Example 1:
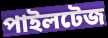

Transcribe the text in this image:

পাইলটেজ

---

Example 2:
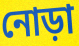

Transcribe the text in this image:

নোড়া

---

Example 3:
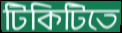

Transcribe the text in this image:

টিকিটিতে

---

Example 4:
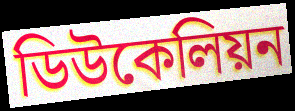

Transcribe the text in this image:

ডিউকেলিয়ন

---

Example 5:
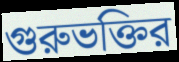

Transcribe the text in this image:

গুরুভক্তির